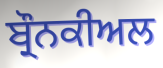
ਬ੍ਰੌਨਕੀਅਲ